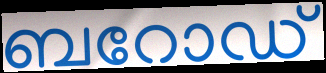
ബറോഡ്